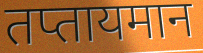
तप्तायमान